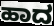
ಹಾದ